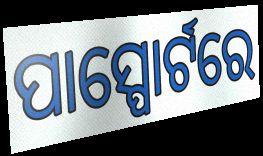
ପାସ୍ପୋର୍ଟରେ